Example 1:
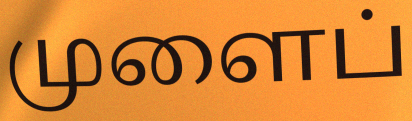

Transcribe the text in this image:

முளைப்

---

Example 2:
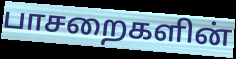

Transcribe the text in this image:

பாசறைகளின்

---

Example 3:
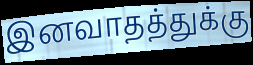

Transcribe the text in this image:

இனவாதத்துக்கு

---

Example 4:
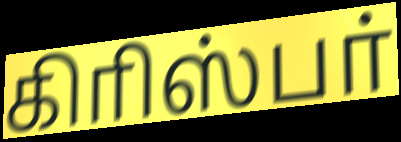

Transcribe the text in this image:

கிரிஸ்பர்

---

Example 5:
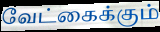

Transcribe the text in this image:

வேட்கைக்கும்